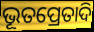
ଭୂତପ୍ରେତାଦି